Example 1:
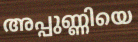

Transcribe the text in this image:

അപ്പുണ്ണിയെ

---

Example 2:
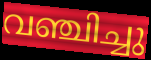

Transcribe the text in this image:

വഞ്ചിച്ചു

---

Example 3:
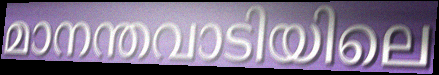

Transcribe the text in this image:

മാനന്തവാടിയിലെ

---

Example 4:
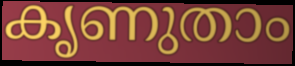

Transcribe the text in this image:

കൃണുതാം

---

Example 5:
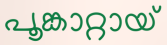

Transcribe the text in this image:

പൂങ്കാറ്റായ്